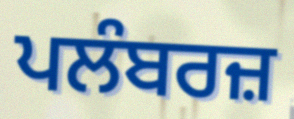
ਪਲੰਬਰਜ਼